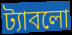
ট্যাবলো